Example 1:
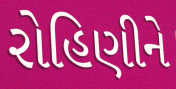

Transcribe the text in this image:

રોહિણીને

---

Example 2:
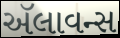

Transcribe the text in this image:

ઍલાવન્સ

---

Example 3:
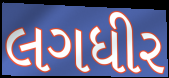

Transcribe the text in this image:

લગધીર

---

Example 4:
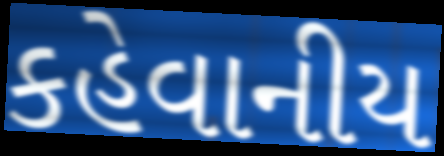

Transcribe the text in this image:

કહેવાનીય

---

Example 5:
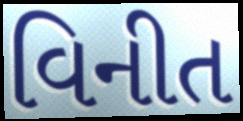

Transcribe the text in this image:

વિનીત